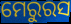
ମେରୁରସ